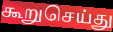
கூறுசெய்து